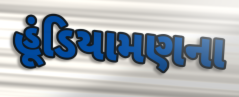
હૂંડિયામણના